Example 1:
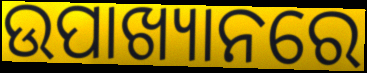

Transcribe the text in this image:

ଉପାଖ୍ୟାନରେ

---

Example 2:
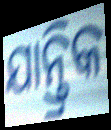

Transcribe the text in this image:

ଯାନ୍ତ୍ରିକ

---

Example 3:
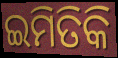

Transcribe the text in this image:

ଇମିତିକି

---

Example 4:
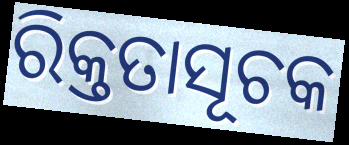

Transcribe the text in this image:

ରିକ୍ତତାସୂଚକ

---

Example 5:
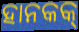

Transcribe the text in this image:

ହାନକକ୍